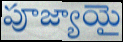
పూజ్యాయై